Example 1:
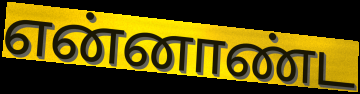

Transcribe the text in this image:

என்னாண்ட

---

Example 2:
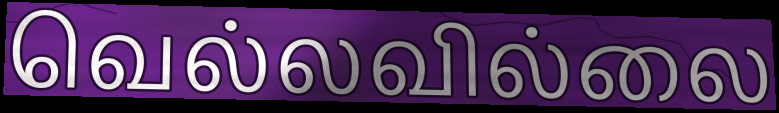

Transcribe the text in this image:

வெல்லவில்லை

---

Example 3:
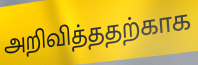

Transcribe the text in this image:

அறிவித்ததற்காக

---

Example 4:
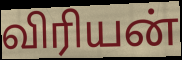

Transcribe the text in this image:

விரியன்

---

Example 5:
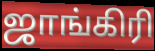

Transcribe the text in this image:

ஜாங்கிரி